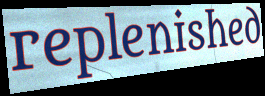
replenished